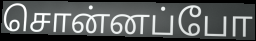
சொன்னப்போ